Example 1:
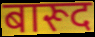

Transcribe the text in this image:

बारूद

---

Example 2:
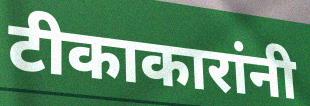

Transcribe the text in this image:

टीकाकारांनी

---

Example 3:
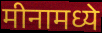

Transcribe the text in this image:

मीनामध्ये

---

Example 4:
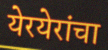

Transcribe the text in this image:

येरयेरांचा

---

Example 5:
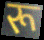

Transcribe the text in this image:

रू